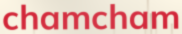
chamcham